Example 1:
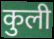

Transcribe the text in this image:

कुली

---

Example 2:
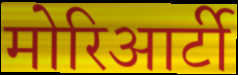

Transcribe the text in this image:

मोरिआर्टी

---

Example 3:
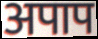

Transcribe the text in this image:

अपाप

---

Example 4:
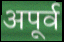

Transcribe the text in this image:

अपूर्व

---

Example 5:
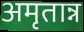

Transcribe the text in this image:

अमृतान्न